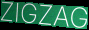
ZIGZAG